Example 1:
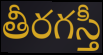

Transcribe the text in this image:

తీరగస్తీ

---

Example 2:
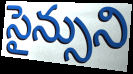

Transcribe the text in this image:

సైన్సుని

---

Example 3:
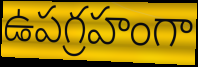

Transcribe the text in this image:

ఉపగ్రహంగా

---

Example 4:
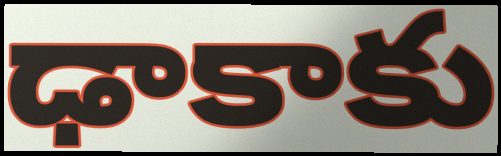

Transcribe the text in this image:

ఢాకాకు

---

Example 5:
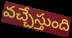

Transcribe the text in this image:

వచ్చేస్తుంది